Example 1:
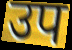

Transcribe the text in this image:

उप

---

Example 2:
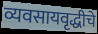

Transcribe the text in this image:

व्यवसायवृद्धीचे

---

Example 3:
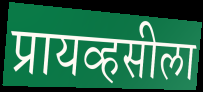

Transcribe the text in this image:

प्रायव्हसीला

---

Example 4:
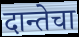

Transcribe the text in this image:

दान्तेचा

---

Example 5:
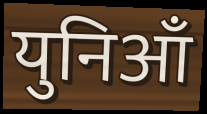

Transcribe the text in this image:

युनिआँ